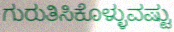
ಗುರುತಿಸಿಕೊಳ್ಳುವಷ್ಟು